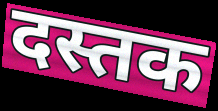
दस्तक